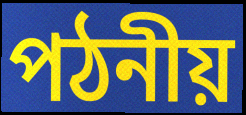
পঠনীয়